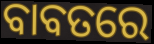
ବାବତରେ